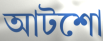
আটশো